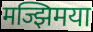
मज्झिमया